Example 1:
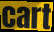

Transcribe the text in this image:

cart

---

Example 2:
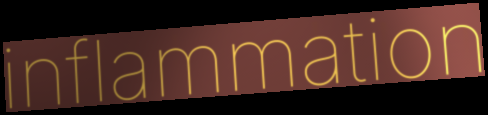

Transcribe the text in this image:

inflammation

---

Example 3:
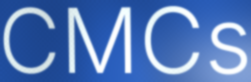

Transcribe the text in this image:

CMCs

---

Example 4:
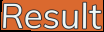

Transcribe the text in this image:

Result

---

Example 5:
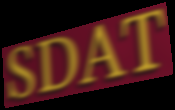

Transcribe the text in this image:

SDAT